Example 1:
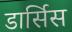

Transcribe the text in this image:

डार्सिस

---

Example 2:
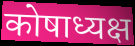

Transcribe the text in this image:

कोषाध्यक्ष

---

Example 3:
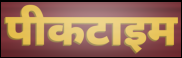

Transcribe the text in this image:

पीकटाइम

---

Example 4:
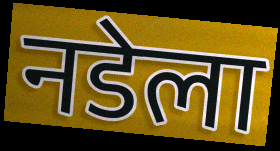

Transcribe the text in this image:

नडेला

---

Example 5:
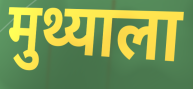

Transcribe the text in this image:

मुथ्याला